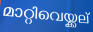
മാറ്റിവെയ്ക്കല്